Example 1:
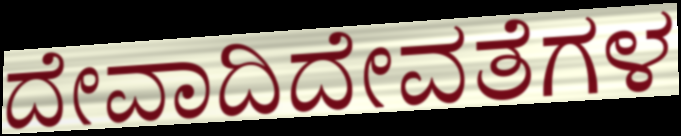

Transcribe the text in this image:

ದೇವಾದಿದೇವತೆಗಳ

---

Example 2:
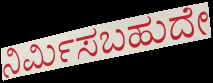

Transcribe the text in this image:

ನಿರ್ಮಿಸಬಹುದೇ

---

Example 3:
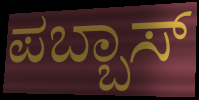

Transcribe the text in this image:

ಪಬ್ಬಾಸ್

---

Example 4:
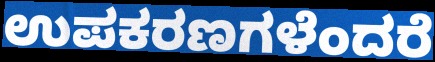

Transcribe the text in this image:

ಉಪಕರಣಗಳೆಂದರೆ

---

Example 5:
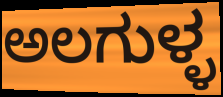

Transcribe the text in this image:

ಅಲಗುಳ್ಳ